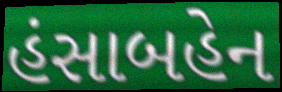
હંસાબહેન